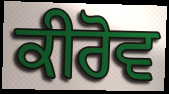
ਕੀਰੋਵ